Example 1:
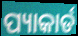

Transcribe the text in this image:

ପ୍ୟାକାର୍ଡ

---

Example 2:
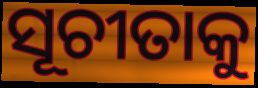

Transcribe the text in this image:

ସୂଚୀତାକୁ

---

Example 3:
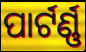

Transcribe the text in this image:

ପାର୍ଟର୍ଣ୍ଣ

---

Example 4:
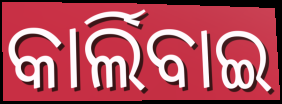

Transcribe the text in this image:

କାର୍ଲିବାଇ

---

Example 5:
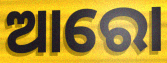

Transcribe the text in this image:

ଆରୋ